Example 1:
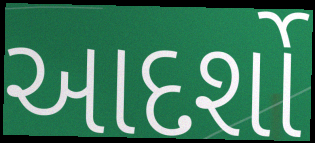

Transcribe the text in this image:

આદર્શો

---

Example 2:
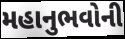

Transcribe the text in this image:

મહાનુભવોની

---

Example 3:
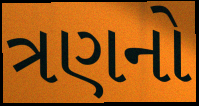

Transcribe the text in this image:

ત્રણનો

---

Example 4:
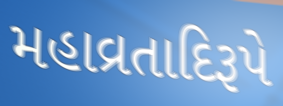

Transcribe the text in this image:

મહાવ્રતાદિરૂપે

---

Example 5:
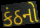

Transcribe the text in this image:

કંઠનો